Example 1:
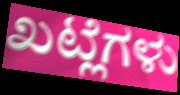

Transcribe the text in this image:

ಖಟ್ಲೆಗಳು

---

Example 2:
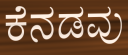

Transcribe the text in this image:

ಕೆನಡವು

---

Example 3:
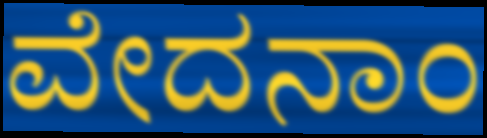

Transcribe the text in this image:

ವೇದನಾಂ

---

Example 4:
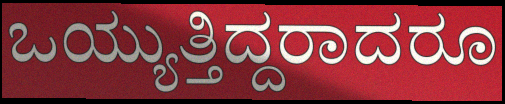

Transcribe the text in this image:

ಒಯ್ಯುತ್ತಿದ್ದರಾದರೂ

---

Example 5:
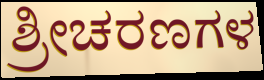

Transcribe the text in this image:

ಶ್ರೀಚರಣಗಳ